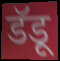
डॅडू